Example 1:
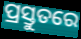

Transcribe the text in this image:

ପ୍ରସ୍ତୁତରେ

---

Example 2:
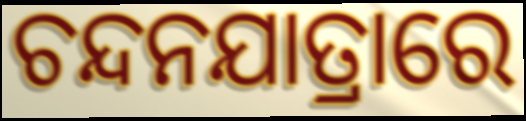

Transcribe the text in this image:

ଚନ୍ଦନଯାତ୍ରାରେ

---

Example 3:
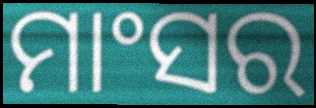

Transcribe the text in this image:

ମାଂସର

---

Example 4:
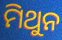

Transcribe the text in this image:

ମିଥୁନ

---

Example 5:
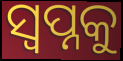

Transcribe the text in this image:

ସ୍ବପ୍ନକୁ